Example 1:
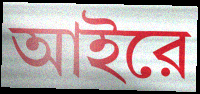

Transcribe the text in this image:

আইরে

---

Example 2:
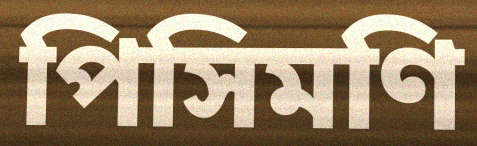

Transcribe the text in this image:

পিসিমণি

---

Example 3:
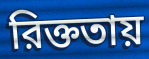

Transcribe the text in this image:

রিক্ততায়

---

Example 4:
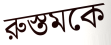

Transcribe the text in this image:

রুস্তমকে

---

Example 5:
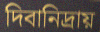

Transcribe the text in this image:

দিবানিদ্রায়